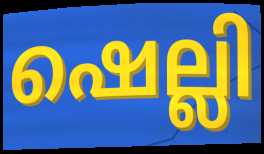
ഷെല്ലി